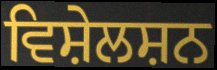
ਵਿਸ਼ੇਲਸ਼ਨ